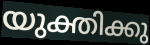
യുക്തിക്കു